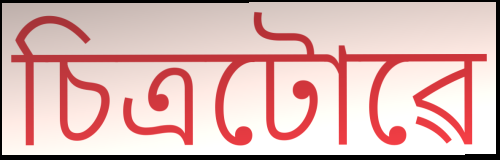
চিত্ৰটোৱে